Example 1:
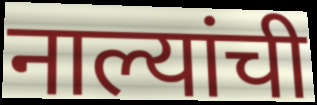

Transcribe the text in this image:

नाल्यांची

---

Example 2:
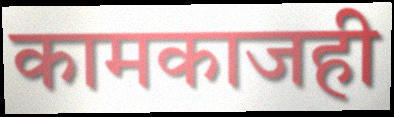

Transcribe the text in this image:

कामकाजही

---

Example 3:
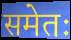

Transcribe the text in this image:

समेतः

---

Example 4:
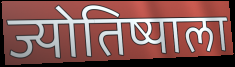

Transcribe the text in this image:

ज्योतिष्याला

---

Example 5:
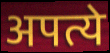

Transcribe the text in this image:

अपत्ये